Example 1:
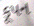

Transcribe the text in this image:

કૂપન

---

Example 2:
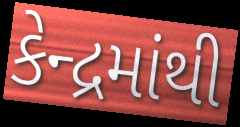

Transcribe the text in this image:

કેન્દ્રમાંથી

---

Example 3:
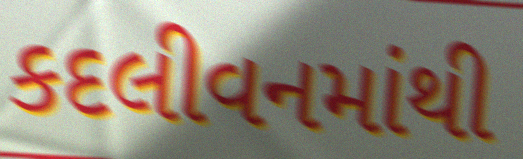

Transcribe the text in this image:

કદલીવનમાંથી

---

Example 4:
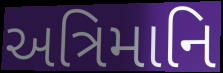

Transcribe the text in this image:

અત્રિમાનિ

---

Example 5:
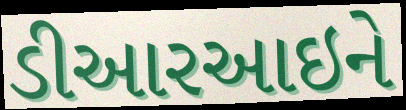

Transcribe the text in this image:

ડીઆરઆઇને